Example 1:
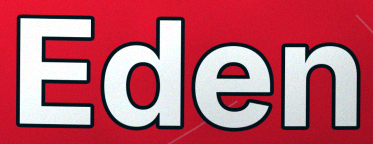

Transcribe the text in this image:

Eden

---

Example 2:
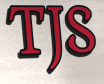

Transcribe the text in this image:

TJS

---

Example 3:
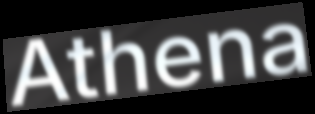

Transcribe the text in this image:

Athena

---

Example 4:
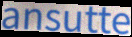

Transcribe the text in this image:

ansutte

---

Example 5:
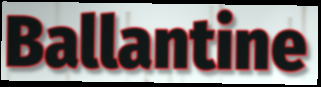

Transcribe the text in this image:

Ballantine